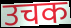
उचक